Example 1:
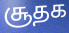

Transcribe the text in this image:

சூதக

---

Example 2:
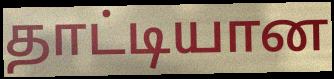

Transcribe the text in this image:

தாட்டியான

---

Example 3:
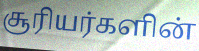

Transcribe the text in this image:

சூரியர்களின்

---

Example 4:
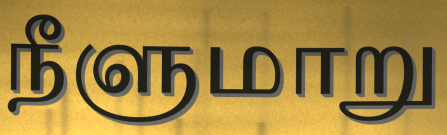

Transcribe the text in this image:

நீளுமாறு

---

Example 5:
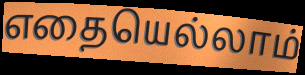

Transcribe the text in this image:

எதையெல்லாம்